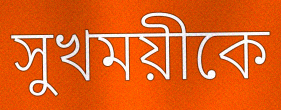
সুখময়ীকে